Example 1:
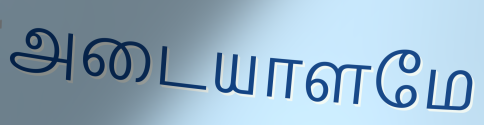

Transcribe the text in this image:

அடையாளமே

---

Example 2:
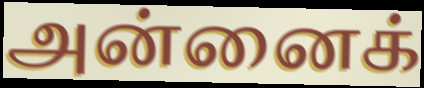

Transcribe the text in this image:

அன்னைக்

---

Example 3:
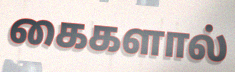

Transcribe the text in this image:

கைகளால்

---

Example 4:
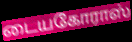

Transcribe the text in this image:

டையகோராஸ்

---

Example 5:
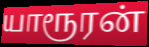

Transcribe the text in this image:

யாரூரன்